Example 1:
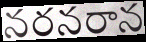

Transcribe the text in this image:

నరనరాన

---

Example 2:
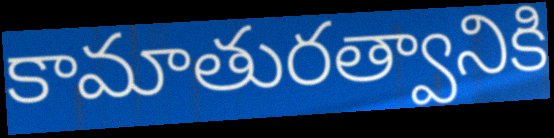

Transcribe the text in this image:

కామాతురత్వానికి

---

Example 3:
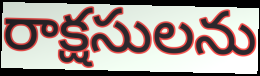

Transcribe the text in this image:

రాక్షసులను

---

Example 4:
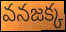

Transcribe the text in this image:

వనజక్క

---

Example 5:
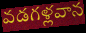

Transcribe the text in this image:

వడగళ్లవాన